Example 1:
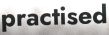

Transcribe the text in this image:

practised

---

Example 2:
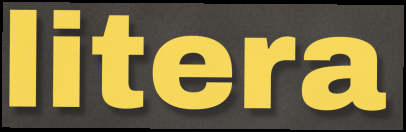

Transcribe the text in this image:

litera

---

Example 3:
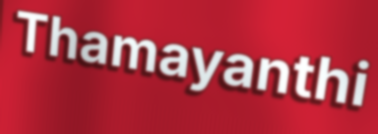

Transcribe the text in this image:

Thamayanthi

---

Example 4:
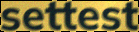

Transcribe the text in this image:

settest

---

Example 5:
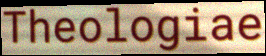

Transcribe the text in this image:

Theologiae